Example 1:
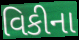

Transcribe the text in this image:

વિકીના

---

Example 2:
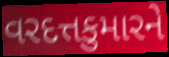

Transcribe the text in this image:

વરદત્તકુમારને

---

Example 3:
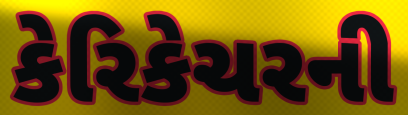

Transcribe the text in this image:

કેરિકેચરની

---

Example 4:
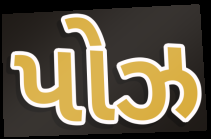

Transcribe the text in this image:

પોઝ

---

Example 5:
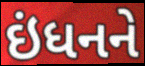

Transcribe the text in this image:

ઇંધનને